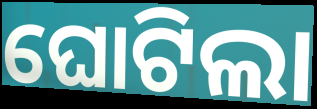
ଘୋଟିଲା